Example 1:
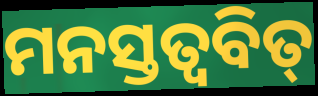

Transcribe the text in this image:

ମନସ୍ତତ୍ଵବିତ୍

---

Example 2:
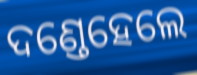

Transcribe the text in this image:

ଦଣ୍ଡେହେଲେ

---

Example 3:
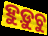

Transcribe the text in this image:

ହୁଡ଼ୁଚୁ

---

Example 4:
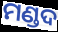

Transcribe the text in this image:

ମଣ୍ଡଦ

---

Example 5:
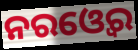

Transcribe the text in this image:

ନରଓ୍ବେର